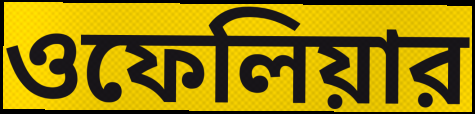
ওফেলিয়ার